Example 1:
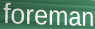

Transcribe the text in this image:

foreman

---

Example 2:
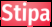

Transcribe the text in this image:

Stipa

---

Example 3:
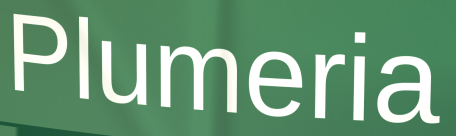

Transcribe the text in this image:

Plumeria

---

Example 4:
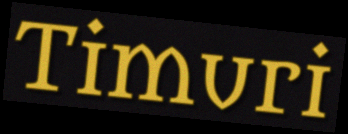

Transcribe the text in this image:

Timuri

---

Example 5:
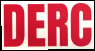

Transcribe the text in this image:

DERC